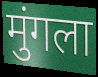
मुंगला